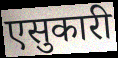
एसुकारी